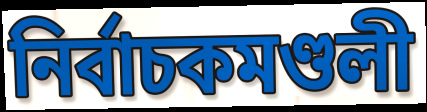
নির্বাচকমণ্ডলী